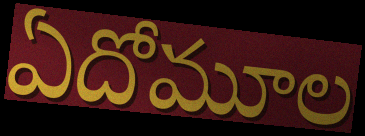
ఏదోమూల